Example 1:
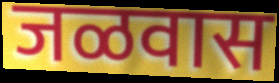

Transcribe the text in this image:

जळवास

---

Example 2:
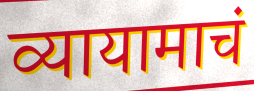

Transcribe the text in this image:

व्यायामाचं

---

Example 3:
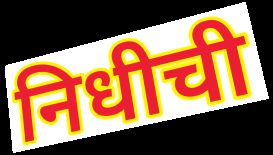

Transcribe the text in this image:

निधीची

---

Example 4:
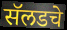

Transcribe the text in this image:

सॅलडचे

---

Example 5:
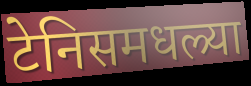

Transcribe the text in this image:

टेनिसमधल्या